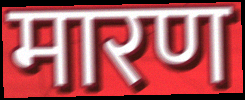
मारण